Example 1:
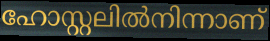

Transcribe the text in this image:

ഹോസ്റ്റലിൽനിന്നാണ്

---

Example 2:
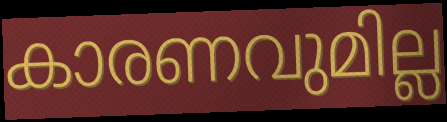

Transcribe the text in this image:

കാരണവുമില്ല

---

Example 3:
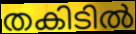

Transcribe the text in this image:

തകിടിൽ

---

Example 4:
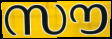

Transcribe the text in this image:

സൗ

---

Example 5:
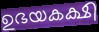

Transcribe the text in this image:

ഉഭയകക്ഷി